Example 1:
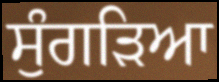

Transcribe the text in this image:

ਸੁੰਗੜਿਆ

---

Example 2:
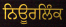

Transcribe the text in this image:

ਨਿਊਰਲਿੰਕ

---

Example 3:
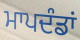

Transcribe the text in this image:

ਮਾਪਦੰਡਾਂ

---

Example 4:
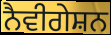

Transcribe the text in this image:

ਨੈਵੀਗੇਸ਼ਨ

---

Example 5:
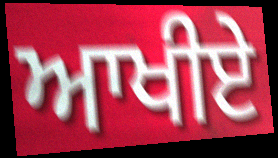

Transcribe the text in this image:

ਆਖੀਏ